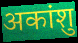
अकांशु